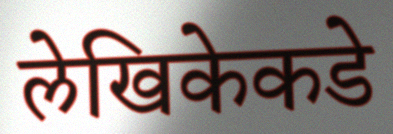
लेखिकेकडे